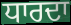
ਧਾਰਦਾ